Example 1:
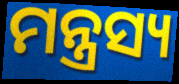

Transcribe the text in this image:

ମନ୍ତ୍ରସ୍ୟ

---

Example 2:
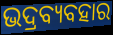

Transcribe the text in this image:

ଭଦ୍ରବ୍ୟବହାର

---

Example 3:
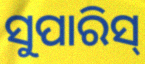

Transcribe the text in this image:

ସୁପାରିସ୍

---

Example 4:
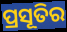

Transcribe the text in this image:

ପ୍ରସୂତିର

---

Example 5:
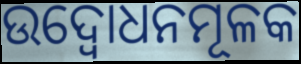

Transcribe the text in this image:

ଉଦ୍ବୋଧନମୂଳକ